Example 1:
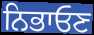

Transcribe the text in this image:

ਨਿਭਾਓਣ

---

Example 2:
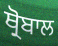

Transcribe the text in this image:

ਥ੍ਰੋਬਾਲ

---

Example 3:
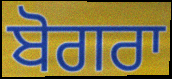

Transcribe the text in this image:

ਬੋਗਰਾ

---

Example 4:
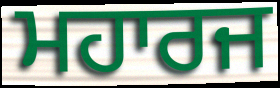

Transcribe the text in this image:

ਮਹਾਰਜ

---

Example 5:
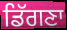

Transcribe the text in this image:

ਡਿੱਗਣਾ